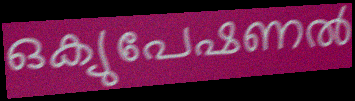
ഒക്യുപേഷണൽ